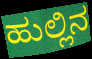
ಹುಲ್ಲಿನ